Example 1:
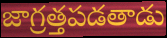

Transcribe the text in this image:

జాగ్రత్తపడతాడు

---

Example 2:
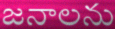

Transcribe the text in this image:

జనాలను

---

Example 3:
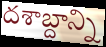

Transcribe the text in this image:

దశాబ్దాన్ని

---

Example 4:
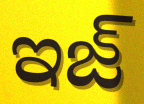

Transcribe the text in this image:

ఇజ్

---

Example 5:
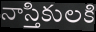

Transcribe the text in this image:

నాస్తికులకి